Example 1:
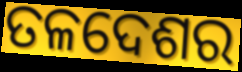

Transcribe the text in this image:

ତଳଦେଶର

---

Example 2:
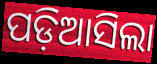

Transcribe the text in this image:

ପଡ଼ିଆସିଲା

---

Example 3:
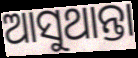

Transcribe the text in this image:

ଆସୁଥାନ୍ତା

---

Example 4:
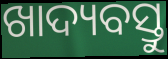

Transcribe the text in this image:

ଖାଦ୍ୟବସ୍ତୁ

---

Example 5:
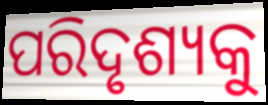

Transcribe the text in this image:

ପରିଦୃଶ୍ୟକୁ